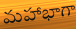
మహాభాగా